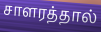
சாளரத்தால்